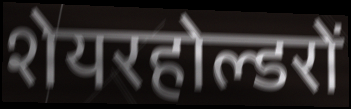
शेयरहोल्डरों